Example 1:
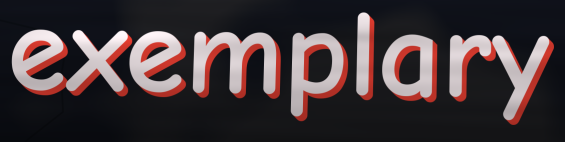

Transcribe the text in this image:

exemplary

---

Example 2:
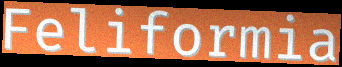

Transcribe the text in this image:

Feliformia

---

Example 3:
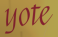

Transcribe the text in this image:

yote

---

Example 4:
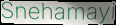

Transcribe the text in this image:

Snehamayi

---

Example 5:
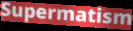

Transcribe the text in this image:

Supermatism